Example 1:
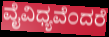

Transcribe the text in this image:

ವೈವಿಧ್ಯವೆಂದರೆ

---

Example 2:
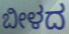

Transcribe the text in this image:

ಬೀಳದ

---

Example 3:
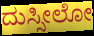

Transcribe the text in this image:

ದುಸ್ಸೀಲೋ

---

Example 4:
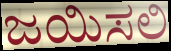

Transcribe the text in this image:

ಜಯಿಸಲಿ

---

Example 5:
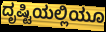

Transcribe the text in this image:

ದೃಷ್ಟಿಯಲ್ಲಿಯೂ